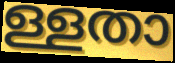
ള്ളതാ